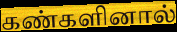
கண்களினால்